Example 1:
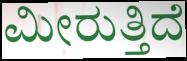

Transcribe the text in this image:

ಮೀರುತ್ತಿದೆ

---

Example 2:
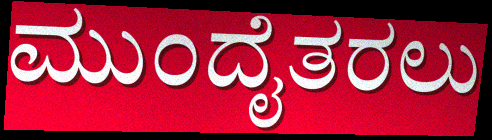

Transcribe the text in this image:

ಮುಂದೈತರಲು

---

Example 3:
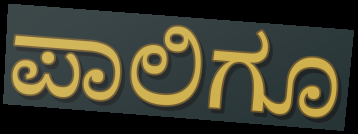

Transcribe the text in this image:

ಪಾಲಿಗೂ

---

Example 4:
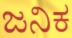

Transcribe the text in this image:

ಜನಿಕ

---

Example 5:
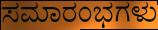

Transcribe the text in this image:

ಸಮಾರಂಭಗಳು